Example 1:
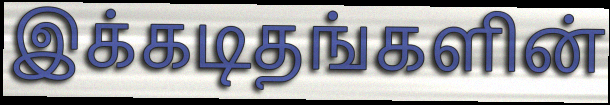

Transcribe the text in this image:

இக்கடிதங்களின்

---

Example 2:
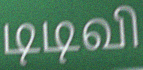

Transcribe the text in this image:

டிடிவி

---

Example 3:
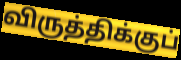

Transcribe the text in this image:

விருத்திக்குப்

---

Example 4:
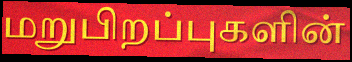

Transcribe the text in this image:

மறுபிறப்புகளின்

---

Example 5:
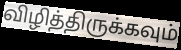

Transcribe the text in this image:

விழித்திருக்கவும்